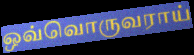
ஒவ்வொருவராய்